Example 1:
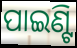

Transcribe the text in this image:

ପାଇଣ୍ଟି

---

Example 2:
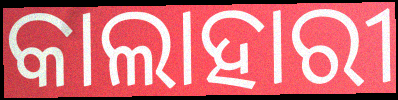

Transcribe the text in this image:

କାଲାହାରୀ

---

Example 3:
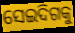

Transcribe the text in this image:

ସେଇଦିଗକୁ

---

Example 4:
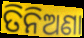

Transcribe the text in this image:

ତିନିଅଣା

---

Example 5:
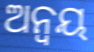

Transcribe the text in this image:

ଅନ୍ଵୟ